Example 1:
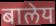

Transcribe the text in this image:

बालेय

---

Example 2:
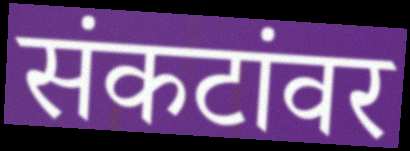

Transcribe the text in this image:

संकटांवर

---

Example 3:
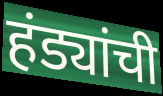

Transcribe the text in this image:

हंड्यांची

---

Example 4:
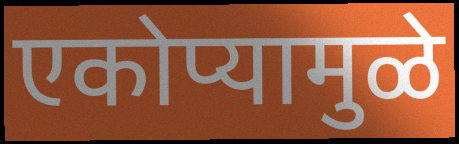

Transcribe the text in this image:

एकोप्यामुळे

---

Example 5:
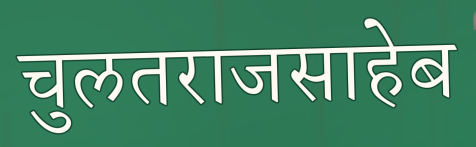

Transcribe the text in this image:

चुलतराजसाहेब